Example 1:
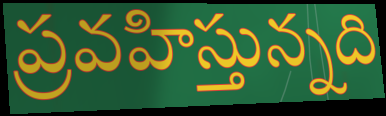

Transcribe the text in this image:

ప్రవహిస్తున్నది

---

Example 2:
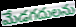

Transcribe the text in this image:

మేడగదులను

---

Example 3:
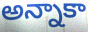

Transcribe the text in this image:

అన్నాకా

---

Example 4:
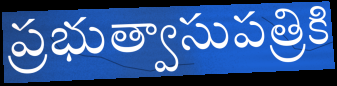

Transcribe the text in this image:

ప్రభుత్వాసుపత్రికి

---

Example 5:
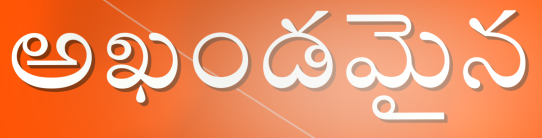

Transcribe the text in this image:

అఖండమైన